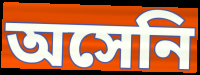
অসেনি